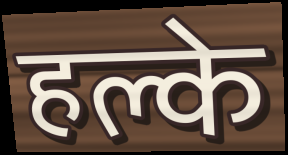
हल्‍के